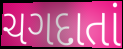
ચગદાતાં